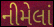
નીમેલાં